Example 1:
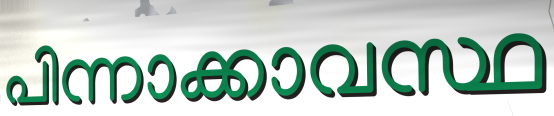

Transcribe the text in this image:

പിന്നാക്കാവസ്ഥ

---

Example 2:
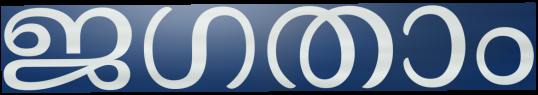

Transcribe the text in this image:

ജഗതാം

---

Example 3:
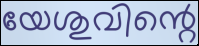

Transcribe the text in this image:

യേശുവിന്റെ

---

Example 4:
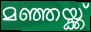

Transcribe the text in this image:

മഞ്ഞയ്ക്ക്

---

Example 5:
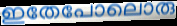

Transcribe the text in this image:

ഇതേപോലൊരു